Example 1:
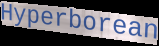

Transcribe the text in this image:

Hyperborean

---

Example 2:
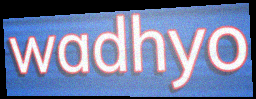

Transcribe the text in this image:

wadhyo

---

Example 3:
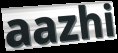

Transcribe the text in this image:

aazhi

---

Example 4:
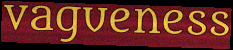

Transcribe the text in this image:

vagueness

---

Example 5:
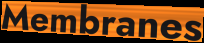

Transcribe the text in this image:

Membranes